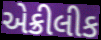
એક્રીલીક